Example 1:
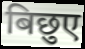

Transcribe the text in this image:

बिछुए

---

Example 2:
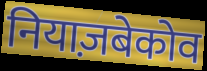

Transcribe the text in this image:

नियाज़बेकोव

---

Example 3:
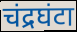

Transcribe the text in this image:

चंद्रघंटा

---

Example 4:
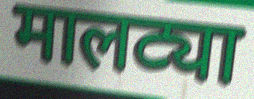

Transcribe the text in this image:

मालट्या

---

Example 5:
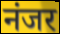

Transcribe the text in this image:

नंजर